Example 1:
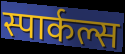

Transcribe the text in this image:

स्पार्कल्स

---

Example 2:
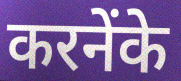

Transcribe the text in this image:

करनेंके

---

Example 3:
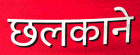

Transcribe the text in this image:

छलकाने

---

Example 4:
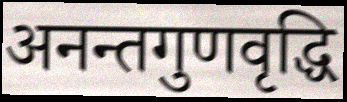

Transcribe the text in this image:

अनन्तगुणवृद्धि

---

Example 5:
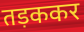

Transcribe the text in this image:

तड़ककर